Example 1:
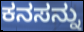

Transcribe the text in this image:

ಕನಸನ್ನು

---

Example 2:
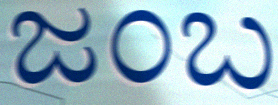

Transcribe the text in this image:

ಜಂಬ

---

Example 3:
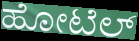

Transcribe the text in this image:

ಹೋಟೆಲ್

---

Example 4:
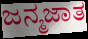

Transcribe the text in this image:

ಜನ್ಮಜಾತ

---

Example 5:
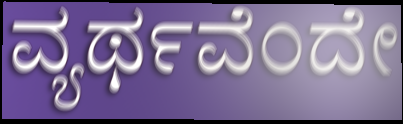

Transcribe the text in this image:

ವ್ಯರ್ಥವೆಂದೇ